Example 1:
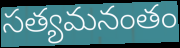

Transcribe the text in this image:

సత్యమనంతం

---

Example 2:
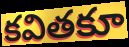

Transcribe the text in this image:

కవితకూ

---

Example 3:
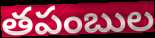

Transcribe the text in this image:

తపంబుల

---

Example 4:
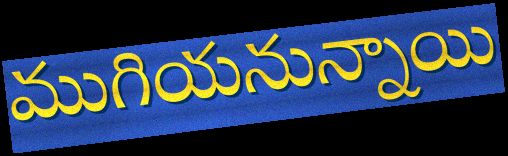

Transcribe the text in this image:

ముగియనున్నాయి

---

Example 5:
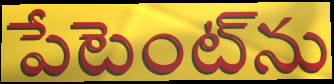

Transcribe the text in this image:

పేటెంట్‌ను